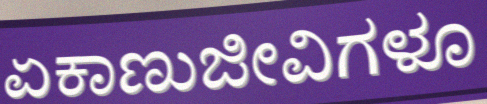
ಏಕಾಣುಜೀವಿಗಳೂ